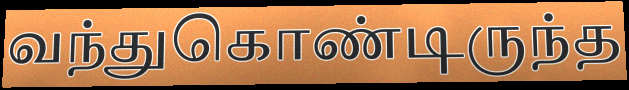
வந்துகொண்டிருந்த